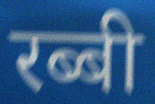
रब्बी